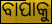
ବାପାକୁ